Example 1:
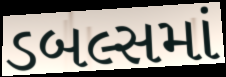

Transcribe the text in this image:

ડબલ્સમાં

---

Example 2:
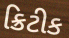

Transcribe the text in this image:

ક્રિટીક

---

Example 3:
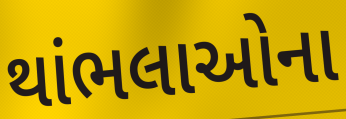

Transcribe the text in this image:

થાંભલાઓના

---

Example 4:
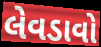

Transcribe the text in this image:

લેવડાવો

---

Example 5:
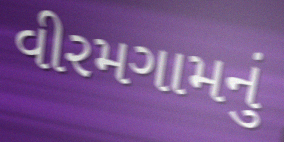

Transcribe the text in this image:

વીરમગામનું